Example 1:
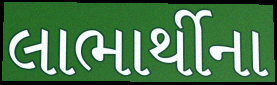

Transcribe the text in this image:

લાભાર્થીના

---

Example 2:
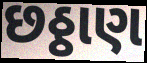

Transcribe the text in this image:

છઠ્ઠાણ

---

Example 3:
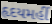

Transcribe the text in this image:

હૃદયમહીં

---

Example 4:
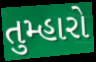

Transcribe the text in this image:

તુમ્હારો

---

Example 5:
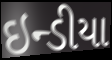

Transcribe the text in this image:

ઇન્ડીયા